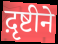
द़ृष्टीने